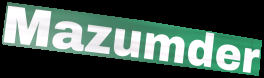
Mazumder